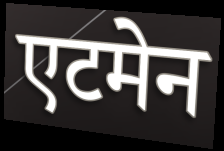
एटमेन